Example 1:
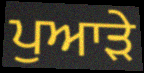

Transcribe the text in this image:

ਪੁਆੜੇ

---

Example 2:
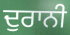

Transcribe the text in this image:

ਦੁਰਾਨੀ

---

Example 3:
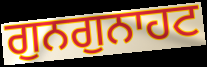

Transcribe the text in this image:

ਗੁਨਗੁਨਾਹਟ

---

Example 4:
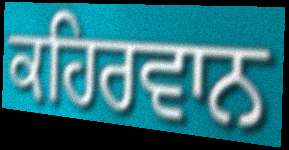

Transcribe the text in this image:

ਕਹਿਰਵਾਨ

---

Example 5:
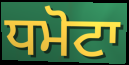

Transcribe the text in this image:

ਧਮੋਟਾ